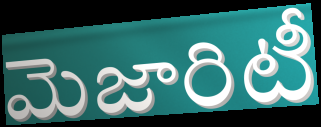
మెజారిటీ